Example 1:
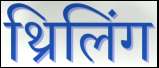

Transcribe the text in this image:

थ्रिलिंग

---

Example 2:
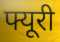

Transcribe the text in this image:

फ्यूरी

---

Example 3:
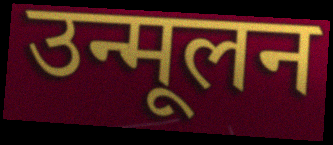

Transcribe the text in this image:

उन्‍मूलन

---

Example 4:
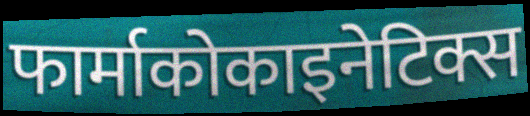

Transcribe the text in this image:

फार्माकोकाइनेटिक्स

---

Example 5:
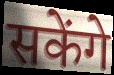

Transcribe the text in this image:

सकेंगे